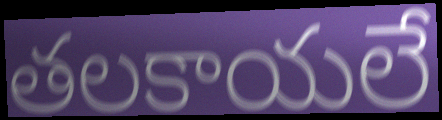
తలకాయలే